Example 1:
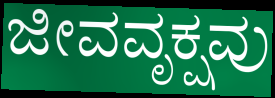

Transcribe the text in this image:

ಜೀವವೃಕ್ಷವು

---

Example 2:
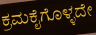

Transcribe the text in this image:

ಕ್ರಮಕೈಗೊಳ್ಳದೇ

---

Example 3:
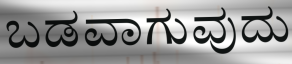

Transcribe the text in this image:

ಬಡವಾಗುವುದು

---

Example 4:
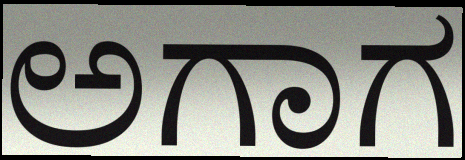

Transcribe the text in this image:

ಅಗಾಗ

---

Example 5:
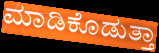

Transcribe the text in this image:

ಮಾಡಿಕೊಡುತ್ತಾ